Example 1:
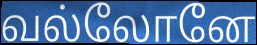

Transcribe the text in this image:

வல்லோனே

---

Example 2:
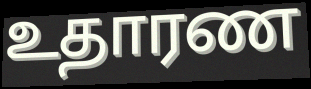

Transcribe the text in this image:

உதாரண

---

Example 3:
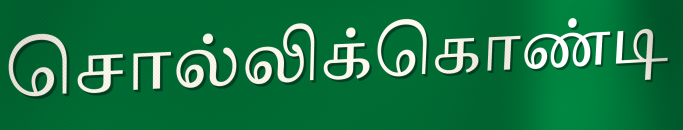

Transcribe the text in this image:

சொல்லிக்கொண்டி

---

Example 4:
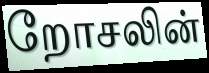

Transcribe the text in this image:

றோசலின்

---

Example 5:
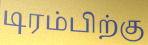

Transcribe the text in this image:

டிரம்பிற்கு